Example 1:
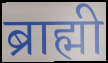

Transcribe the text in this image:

ब्राह्मी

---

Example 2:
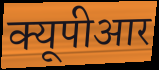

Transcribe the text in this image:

क्यूपीआर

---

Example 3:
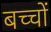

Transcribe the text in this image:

बच्चों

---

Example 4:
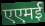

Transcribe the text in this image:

एएमई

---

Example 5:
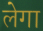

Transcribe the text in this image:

लेगा